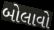
બોલાવો